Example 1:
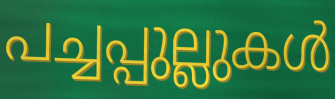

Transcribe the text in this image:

പച്ചപ്പുല്ലുകൾ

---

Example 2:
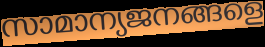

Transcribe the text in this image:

സാമാന്യജനങ്ങളെ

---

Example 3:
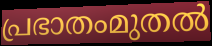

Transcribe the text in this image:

പ്രഭാതംമുതൽ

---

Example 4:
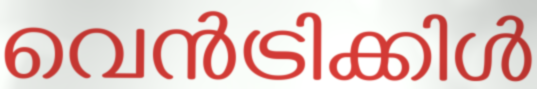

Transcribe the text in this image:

വെൻട്രിക്കിൾ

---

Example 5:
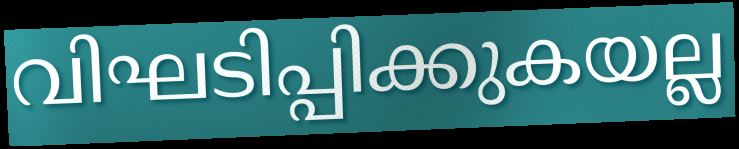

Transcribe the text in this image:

വിഘടിപ്പിക്കുകയല്ല